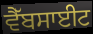
ਵੈੱਬਸਾਈਟ